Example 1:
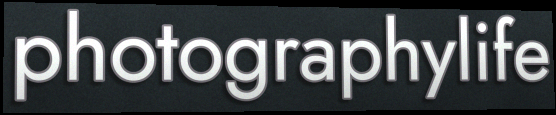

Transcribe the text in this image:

photographylife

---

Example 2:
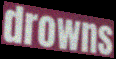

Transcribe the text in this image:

drowns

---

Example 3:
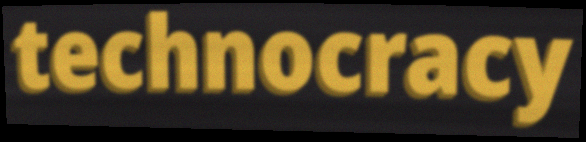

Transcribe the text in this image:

technocracy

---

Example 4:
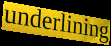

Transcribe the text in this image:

underlining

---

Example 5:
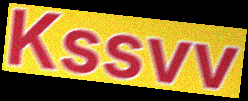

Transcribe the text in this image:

Kssvv